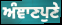
ਅੰਞਾਣਪੁਣੇ